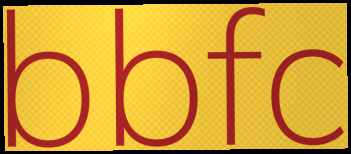
bbfc